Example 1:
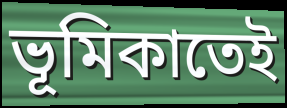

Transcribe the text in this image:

ভূমিকাতেই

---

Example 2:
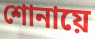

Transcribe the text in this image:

শোনায়ে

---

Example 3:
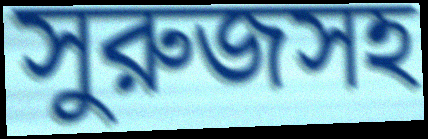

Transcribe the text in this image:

সুরুজসহ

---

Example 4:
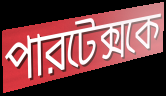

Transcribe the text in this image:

পারটেক্সকে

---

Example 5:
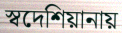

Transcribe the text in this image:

স্বদেশিয়ানায়